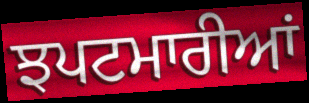
ਝਪਟਮਾਰੀਆਂ